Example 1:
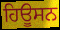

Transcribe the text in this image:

ਹਿਊਸਨ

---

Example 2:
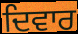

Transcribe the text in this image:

ਦਿਵਾਰ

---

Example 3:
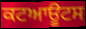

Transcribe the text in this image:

ਕਟਆਊਟਸ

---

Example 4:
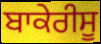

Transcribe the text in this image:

ਬਾਕੇਰੀਸੂ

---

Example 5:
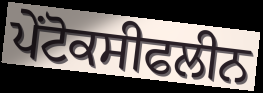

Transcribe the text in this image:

ਪੇਂਟੋਕਸੀਫਲੀਨ